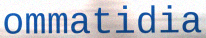
ommatidia